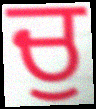
ਚੁ